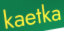
kaetka